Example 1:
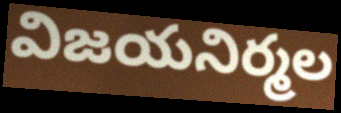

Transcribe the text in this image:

విజయనిర్మల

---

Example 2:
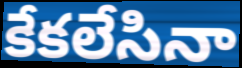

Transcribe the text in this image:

కేకలేసినా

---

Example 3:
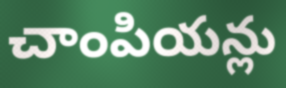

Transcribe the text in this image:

చాంపియన్లు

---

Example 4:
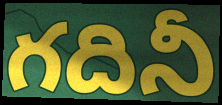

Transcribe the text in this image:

గదినీ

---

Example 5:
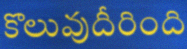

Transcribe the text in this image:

కొలువుదీరింది